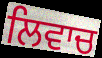
ਲਿਵਾਚ